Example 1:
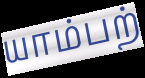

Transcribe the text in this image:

யாம்பற்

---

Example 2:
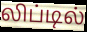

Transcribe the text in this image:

லிப்டில்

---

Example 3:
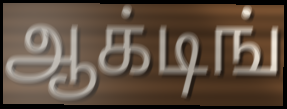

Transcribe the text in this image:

ஆக்டிங்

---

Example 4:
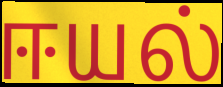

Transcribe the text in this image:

ஈயல்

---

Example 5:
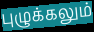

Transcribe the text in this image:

புழுக்கலும்